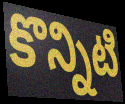
కొన్నిటి